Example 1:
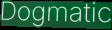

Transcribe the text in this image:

Dogmatic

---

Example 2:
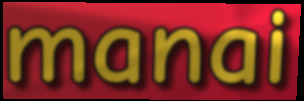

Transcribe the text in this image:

manai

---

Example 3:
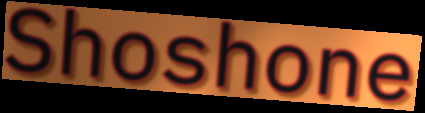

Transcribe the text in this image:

Shoshone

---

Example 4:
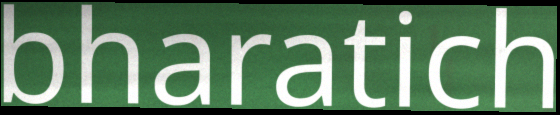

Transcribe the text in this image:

bharatich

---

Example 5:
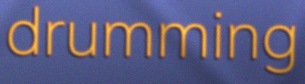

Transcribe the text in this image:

drumming